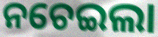
ନଚେଇଲା